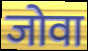
जोवा